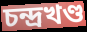
চন্দ্রখণ্ড